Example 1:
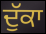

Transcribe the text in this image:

ਦੁੱਕਾ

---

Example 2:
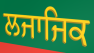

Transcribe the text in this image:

ਲਜਾਜਿਕ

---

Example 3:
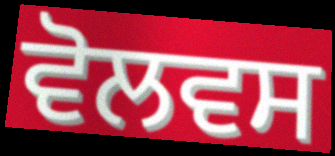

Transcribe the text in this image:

ਵੋਲਵਸ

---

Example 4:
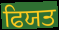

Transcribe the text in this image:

ਫਿਯਤ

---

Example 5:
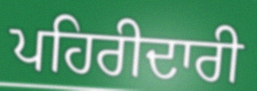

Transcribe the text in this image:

ਪਹਿਰੀਦਾਰੀ